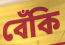
বেঁকি